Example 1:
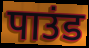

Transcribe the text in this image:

पाउंड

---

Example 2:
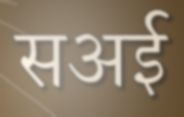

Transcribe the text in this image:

सअई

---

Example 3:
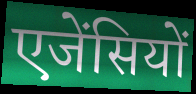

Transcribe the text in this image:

एजेंसियों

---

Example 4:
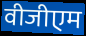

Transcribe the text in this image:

वीजीएम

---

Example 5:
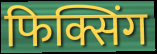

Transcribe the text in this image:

फिक्सिंग